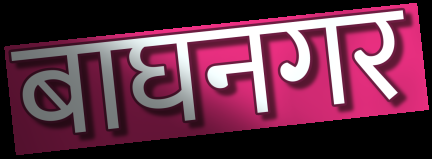
बाघनगर